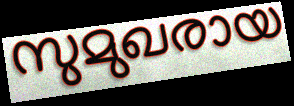
സുമുഖരായ